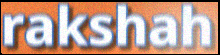
rakshah